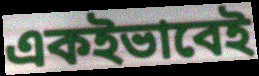
একইভাবেই